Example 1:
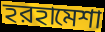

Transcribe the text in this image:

হরহামেশা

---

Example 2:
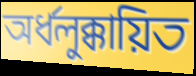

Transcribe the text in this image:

অর্ধলুক্কায়িত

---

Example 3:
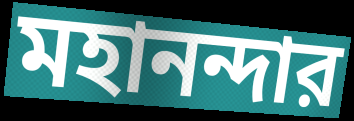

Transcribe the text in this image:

মহানন্দার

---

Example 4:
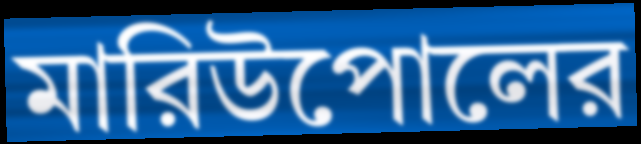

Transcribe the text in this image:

মারিউপোলের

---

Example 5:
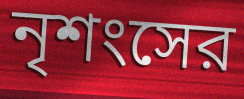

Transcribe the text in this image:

নৃশংসের